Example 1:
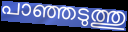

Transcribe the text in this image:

പാഞ്ഞടുത്തു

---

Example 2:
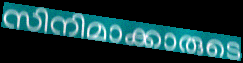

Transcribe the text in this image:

സിനിമാക്കാരുടെ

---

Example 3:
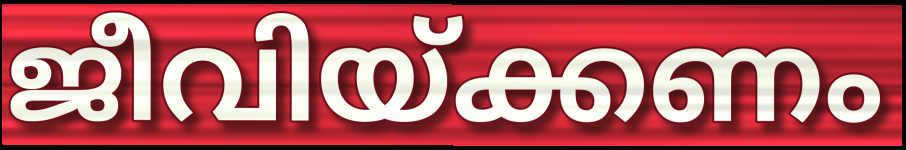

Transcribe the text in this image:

ജീവിയ്ക്കണം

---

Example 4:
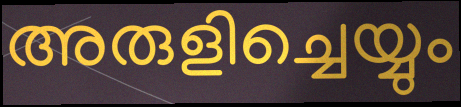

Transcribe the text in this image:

അരുളിച്ചെയ്യും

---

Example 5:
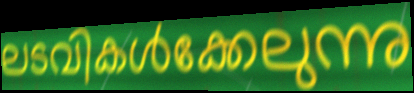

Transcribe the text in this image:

ലടവികൾക്കേലുന്നു